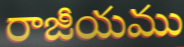
రాజీయము